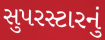
સુપરસ્ટારનું